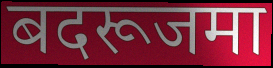
बदरूजमा